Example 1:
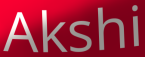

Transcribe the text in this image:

Akshi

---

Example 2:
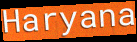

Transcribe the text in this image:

Haryana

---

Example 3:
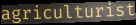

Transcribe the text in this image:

agriculturist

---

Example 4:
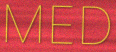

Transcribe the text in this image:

MED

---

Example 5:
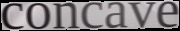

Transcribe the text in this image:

concave